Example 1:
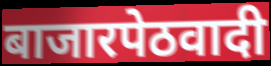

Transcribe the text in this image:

बाजारपेठवादी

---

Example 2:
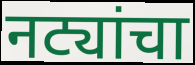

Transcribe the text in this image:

नट्यांचा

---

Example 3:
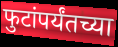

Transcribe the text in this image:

फुटांपर्यंतच्या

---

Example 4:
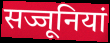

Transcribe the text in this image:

सज्जूनियां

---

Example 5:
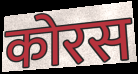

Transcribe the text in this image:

कोरस